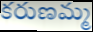
కరుణమ్మ